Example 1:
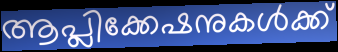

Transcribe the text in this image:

ആപ്ലിക്കേഷനുകൾക്ക്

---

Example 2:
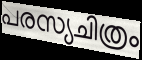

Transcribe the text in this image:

പരസ്യചിത്രം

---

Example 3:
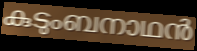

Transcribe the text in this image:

കുടുംബനാഥൻ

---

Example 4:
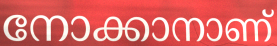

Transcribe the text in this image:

നോക്കാനാണ്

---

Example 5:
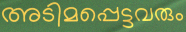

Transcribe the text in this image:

അടിമപ്പെട്ടവരും